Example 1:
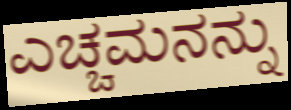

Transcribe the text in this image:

ಎಚ್ಚಮನನ್ನು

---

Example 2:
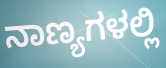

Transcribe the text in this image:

ನಾಣ್ಯಗಳಲ್ಲಿ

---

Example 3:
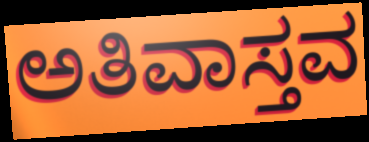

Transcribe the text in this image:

ಅತಿವಾಸ್ತವ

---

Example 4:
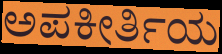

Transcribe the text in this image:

ಅಪಕೀರ್ತಿಯ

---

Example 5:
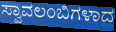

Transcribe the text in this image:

ಸ್ವಾವಲಂಬಿಗಳಾದ